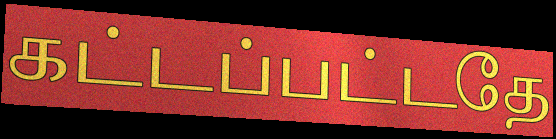
கட்டப்பட்டதே